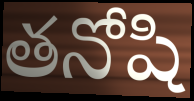
తనోషి